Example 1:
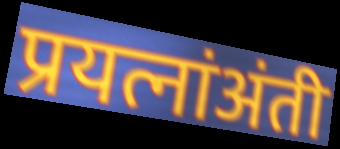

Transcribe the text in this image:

प्रयत्नांअंती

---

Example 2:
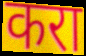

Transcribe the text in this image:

करा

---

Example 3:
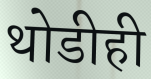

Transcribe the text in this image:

थोडीही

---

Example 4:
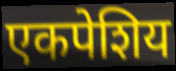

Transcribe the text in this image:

एकपेशिय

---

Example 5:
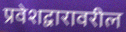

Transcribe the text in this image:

प्रवेशद्वारावरील